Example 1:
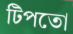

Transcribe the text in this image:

টিপতো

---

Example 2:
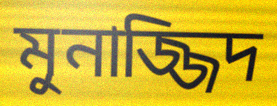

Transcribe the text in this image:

মুনাজ্জিদ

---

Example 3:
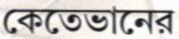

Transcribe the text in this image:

কেতেভানের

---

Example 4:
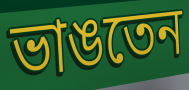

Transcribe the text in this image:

ভাঙতেন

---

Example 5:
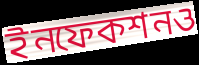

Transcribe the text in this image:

ইনফেকশনও